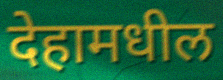
देहामधील